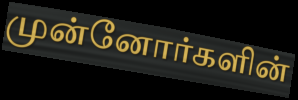
முன்னோர்களின்